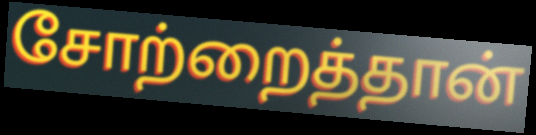
சோற்றைத்தான்